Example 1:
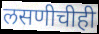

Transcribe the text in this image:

लसणीचीही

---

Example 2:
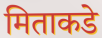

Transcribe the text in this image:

मिताकडे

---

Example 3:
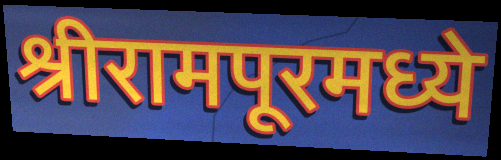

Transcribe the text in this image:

श्रीरामपूरमध्ये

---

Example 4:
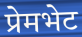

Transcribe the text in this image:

प्रेमभेट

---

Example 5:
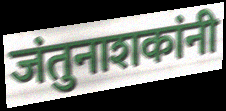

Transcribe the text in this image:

जंतुनाशकांनी